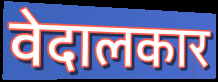
वेदालकार